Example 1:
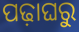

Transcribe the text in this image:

ପଢ଼ାଘରୁ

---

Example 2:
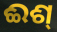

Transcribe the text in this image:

ଈଶ୍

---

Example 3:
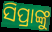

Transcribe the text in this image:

ସିପ୍ରାଙ୍କୁ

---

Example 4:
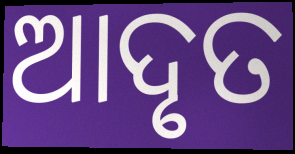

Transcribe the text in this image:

ଆଦୃତ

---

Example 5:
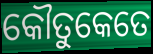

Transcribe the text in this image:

କୌତୁକେତେ